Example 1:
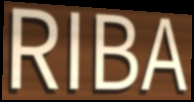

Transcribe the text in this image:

RIBA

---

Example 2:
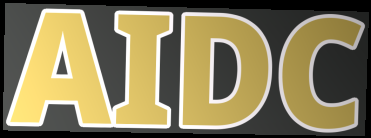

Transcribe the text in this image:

AIDC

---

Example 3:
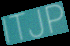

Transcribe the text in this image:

ITJP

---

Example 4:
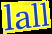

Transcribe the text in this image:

lall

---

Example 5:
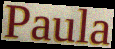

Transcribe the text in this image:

Paula